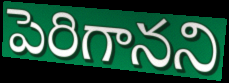
పెరిగానని